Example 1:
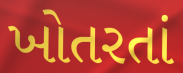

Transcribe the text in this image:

ખોતરતાં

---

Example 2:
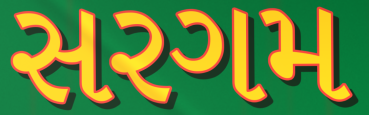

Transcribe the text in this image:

સરગમ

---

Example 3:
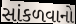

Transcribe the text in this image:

સાંકળવાનો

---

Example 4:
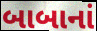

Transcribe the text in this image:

બાબાનાં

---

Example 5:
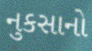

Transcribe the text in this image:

નુકસાનો